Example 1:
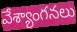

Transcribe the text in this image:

వేశ్యాంగనలు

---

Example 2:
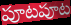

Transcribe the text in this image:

పూటపూట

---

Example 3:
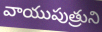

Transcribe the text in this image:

వాయుపుత్రుని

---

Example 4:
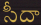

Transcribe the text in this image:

సీదా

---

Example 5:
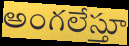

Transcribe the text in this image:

అంగలేస్తూ